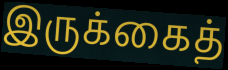
இருக்கைத்